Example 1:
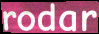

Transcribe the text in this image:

rodar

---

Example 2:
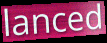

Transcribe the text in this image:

lanced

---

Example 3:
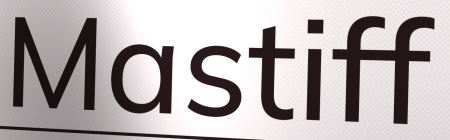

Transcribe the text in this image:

Mastiff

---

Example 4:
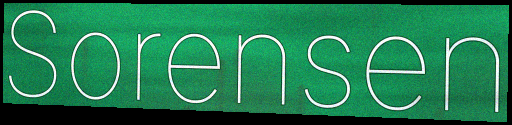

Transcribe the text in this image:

Sorensen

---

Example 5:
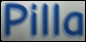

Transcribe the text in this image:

Pilla